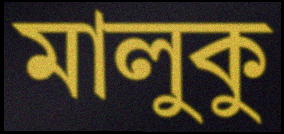
মালুকু